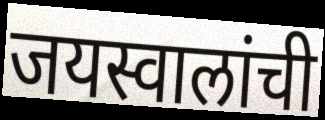
जयस्वालांची